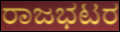
ರಾಜಭಟರ